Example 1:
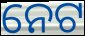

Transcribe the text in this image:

ନେଟ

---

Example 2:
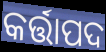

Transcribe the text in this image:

କର୍ତ୍ତାପଦ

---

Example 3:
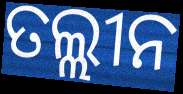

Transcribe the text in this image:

ତଲ୍ଲୀନ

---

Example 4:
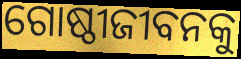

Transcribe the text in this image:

ଗୋଷ୍ଠୀଜୀବନକୁ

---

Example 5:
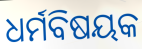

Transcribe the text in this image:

ଧର୍ମବିଷୟକ